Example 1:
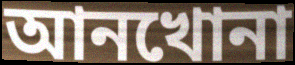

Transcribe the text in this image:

আনখোনা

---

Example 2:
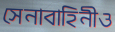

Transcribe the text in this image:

সেনাবাহিনীও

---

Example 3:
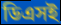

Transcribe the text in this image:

ডিএসই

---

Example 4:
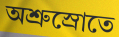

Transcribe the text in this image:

অশ্রুস্রোতে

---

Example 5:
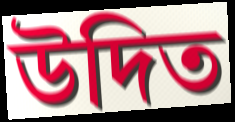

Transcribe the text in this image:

উদিত